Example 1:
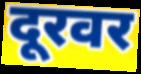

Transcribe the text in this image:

दूरवर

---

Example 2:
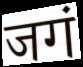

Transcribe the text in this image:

जगं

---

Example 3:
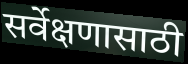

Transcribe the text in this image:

सर्वेक्षणासाठी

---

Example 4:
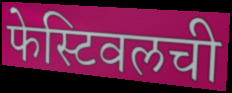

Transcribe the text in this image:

फेस्टिवलची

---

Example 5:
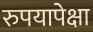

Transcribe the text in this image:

रुपयापेक्षा